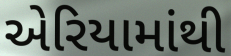
એરિયામાંથી